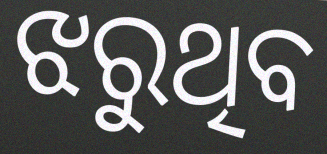
ଝରୁଥିବ